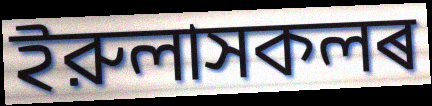
ইৰুলাসকলৰ